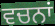
ਵਚਨਾਂ